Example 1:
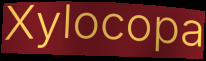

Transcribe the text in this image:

Xylocopa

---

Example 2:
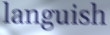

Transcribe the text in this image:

languish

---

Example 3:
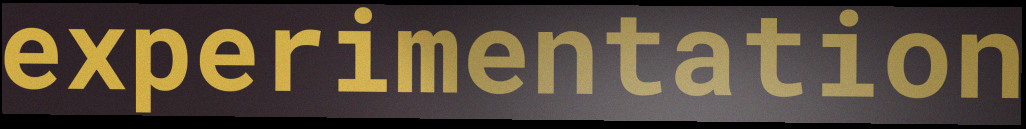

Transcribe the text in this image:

experimentation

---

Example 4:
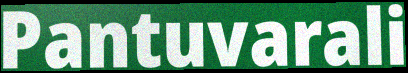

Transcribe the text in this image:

Pantuvarali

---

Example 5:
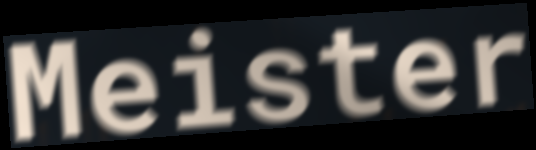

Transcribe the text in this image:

Meister